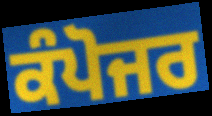
ਕੰਪੋਜਰ